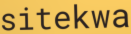
sitekwa